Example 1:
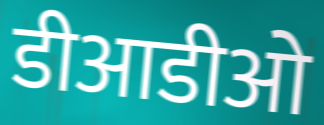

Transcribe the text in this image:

डीआडीओ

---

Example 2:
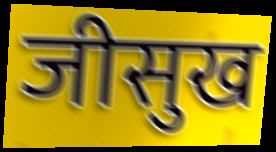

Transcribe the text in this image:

जीसुख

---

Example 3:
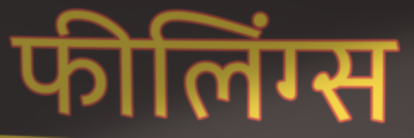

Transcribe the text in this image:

फीलिंग्स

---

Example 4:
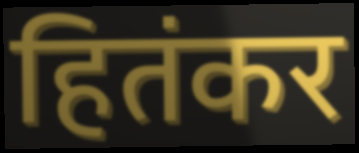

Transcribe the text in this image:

हितंकर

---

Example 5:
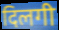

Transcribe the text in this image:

दिलगी